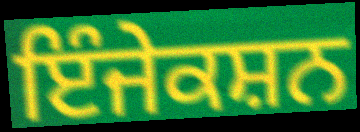
ਇੰਜੇਕਸ਼ਨ